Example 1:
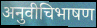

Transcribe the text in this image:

अनुवीचिभाषण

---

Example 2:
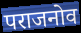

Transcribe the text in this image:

पराजनोव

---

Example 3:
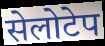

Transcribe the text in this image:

सेलोटेप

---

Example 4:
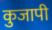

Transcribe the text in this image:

कुजापी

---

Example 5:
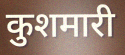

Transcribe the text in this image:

कुशमारी